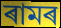
ৰামৰ